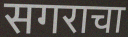
सगराचा